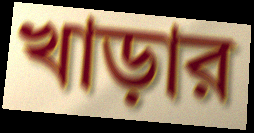
খাড়ার